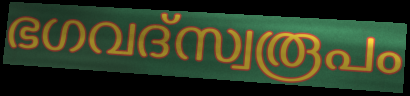
ഭഗവദ്സ്വരൂപം